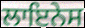
ਲਾਇਨੇਸ